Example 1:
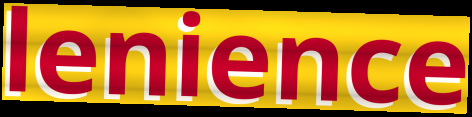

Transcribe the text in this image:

lenience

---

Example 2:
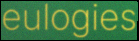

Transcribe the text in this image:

eulogies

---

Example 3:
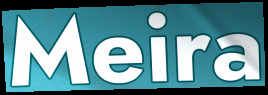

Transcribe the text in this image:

Meira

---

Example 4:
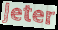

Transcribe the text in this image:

Jeter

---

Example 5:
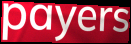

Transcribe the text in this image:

payers